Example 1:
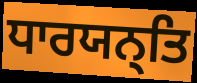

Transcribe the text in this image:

ਧਾਰਯਨ੍ਤਿ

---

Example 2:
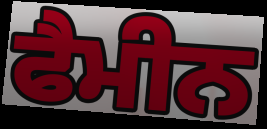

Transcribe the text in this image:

ਫੈਮੀਨ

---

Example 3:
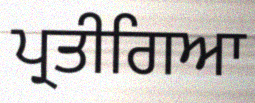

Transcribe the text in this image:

ਪ੍ਰਤੀਗਿਆ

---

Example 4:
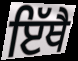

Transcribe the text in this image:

ਇੱਥੈ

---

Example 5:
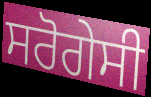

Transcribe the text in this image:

ਸਰੋਗੇਸੀ